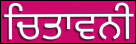
ਚਿਤਾਵਨੀ